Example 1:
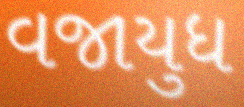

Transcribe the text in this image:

વજાયુધ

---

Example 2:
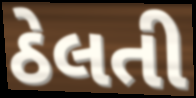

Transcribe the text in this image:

ઠેલતી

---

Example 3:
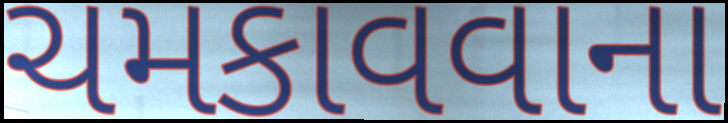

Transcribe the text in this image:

ચમકાવવાના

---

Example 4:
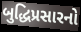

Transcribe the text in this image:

બુદ્ધિપ્રસારનો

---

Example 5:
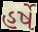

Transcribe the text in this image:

હર્ષે